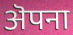
ऄपना